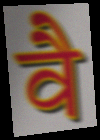
वै